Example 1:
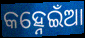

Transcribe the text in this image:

କହ୍ନେଇଁଆ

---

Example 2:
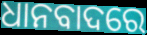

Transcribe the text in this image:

ଧାନବାଦରେ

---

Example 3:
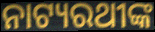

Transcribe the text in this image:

ନାଟ୍ୟରଥୀଙ୍କ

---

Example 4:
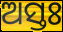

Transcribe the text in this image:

ଅସ୍ତଃ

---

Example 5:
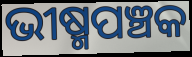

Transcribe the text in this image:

ଭୀଷ୍ମପଞ୍ଚକ